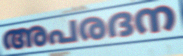
അപരദന